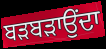
ਬੜਬੜਾਉਂਦਾ